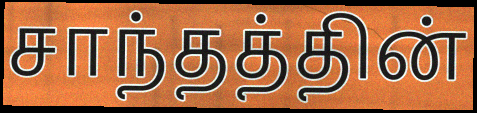
சாந்தத்தின்